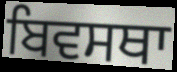
ਬਿਵਸਥਾ